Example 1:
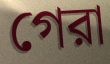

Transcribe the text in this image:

গেরা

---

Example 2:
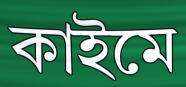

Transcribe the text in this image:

কাইমে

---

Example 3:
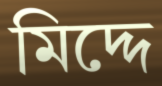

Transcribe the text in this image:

মিদ্দে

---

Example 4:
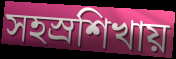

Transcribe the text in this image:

সহস্রশিখায়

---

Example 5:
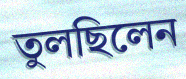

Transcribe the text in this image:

তুলছিলেন